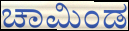
ಚಾಮಿಂಡ